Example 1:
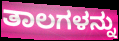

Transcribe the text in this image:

ತಾಲಗಳನ್ನು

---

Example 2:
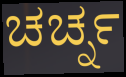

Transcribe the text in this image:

ಚರ್ಚ್ನ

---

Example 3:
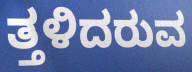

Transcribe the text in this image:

ತ್ತಳಿದರುವ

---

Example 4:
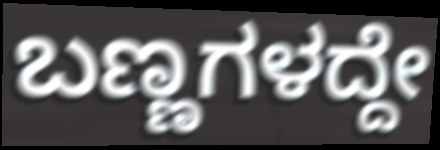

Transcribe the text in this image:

ಬಣ್ಣಗಳದ್ದೇ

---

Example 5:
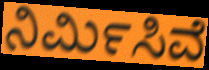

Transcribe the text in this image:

ನಿರ್ಮಿಸಿವೆ